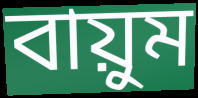
বায়ুম